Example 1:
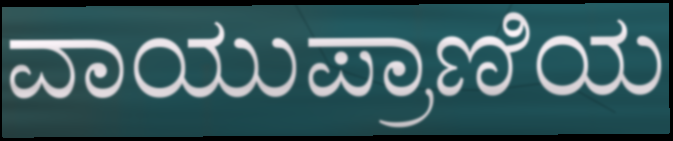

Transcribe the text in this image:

ವಾಯುಪ್ರಾಣಿಯ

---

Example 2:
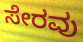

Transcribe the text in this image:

ಸೇರವು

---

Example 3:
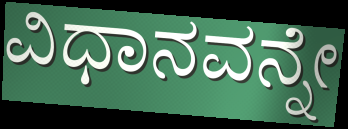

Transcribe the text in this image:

ವಿಧಾನವನ್ನೇ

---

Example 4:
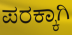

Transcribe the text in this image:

ಪರಕ್ಕಾಗಿ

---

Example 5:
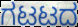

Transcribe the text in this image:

ಗಟಟದ